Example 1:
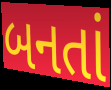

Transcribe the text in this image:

બનતાં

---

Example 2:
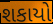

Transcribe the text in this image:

શકાયો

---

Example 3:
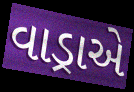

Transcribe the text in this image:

વાડ્રાએ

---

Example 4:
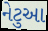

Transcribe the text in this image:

નેટુઆ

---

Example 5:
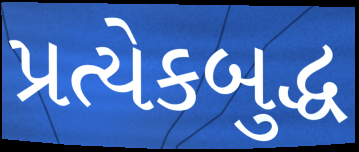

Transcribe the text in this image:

પ્રત્યેકબુદ્ધ